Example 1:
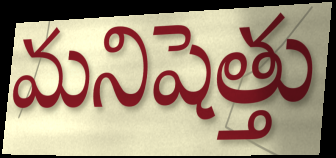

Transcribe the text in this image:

మనిషెత్తు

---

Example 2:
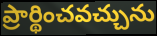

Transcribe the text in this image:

ప్రార్థించవచ్చును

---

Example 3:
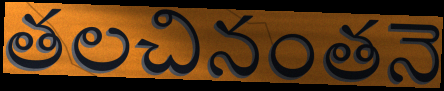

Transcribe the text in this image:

తలచినంతనె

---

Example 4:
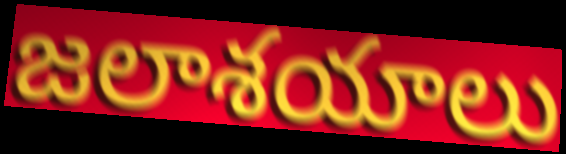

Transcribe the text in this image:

జలాశయాలు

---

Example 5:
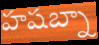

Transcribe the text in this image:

హషబ్నా